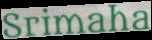
Srimaha